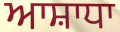
ਆਸ਼ਾਧਾ